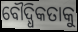
ବୌଦ୍ଧିକତାକୁ